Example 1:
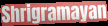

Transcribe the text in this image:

Shrigramayan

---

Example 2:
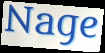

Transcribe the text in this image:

Nage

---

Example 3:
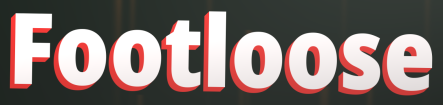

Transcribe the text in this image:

Footloose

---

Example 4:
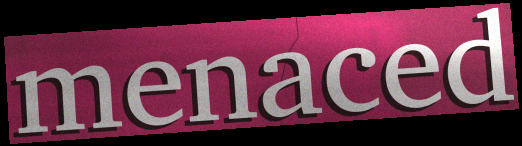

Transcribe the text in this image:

menaced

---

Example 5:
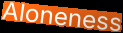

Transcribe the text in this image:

Aloneness